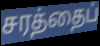
சரத்தைப்